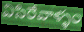
విసిరేవాళ్ళం